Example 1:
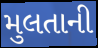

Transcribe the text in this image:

મુલતાની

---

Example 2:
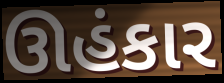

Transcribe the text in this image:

ઊહંકાર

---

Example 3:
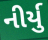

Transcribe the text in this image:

નીર્યુ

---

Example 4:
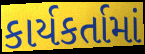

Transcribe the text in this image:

કાર્યકર્તામાં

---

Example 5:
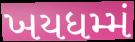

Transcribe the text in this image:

ખયધમ્મં